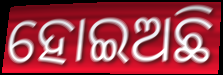
ହୋଇଅଛି